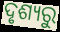
ଦୃଶ୍ୟରୁ